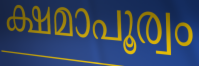
ക്ഷമാപൂര്വം